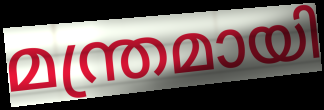
മന്ത്രമായി